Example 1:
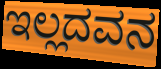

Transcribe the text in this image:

ಇಲ್ಲದವನ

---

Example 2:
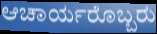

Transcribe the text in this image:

ಆಚಾರ್ಯರೊಬ್ಬರು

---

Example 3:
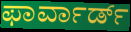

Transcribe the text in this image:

ಫಾರ್ವಾರ್ಡ್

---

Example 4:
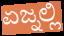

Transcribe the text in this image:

ಏಜ್ನಲ್ಲಿ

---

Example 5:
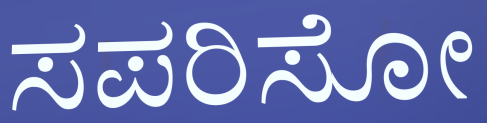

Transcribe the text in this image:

ಸಪರಿಸೋ